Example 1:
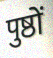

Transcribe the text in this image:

पुष्ठों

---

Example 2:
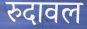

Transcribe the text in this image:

रुदावल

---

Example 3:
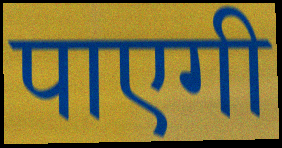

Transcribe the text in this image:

पाएगी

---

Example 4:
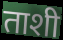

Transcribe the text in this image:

ताशी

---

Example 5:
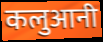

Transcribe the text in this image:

कलुआनी